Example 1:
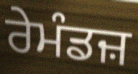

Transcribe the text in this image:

ਰੇਮੰਡਜ਼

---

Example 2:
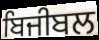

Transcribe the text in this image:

ਬਿਜੀਬਲ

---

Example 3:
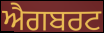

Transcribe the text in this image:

ਐਗਬਰਟ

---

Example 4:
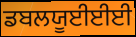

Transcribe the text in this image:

ਡਬਲਯੂਈਈਈ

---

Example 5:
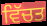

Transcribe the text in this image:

ਵਿੱਚਤ